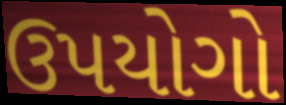
ઉપયોગો